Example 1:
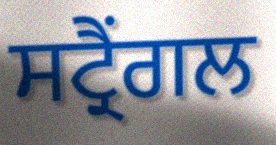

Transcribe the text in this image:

ਸਟ੍ਰੈਂਗਲ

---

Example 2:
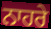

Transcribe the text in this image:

ਨਾਹਰੇ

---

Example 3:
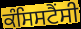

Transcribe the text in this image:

ਕੰਸਿਸਟੈਂਸੀ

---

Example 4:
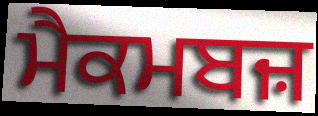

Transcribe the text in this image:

ਮੈਕਮਬਜ਼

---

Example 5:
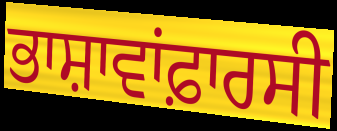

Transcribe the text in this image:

ਭਾਸ਼ਾਵਾਂਫ਼ਾਰਸੀ